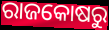
ରାଜକୋଷରୁ